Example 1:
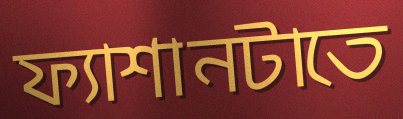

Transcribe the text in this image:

ফ্যাশানটাতে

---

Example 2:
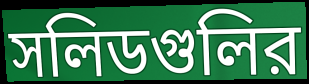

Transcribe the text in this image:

সলিডগুলির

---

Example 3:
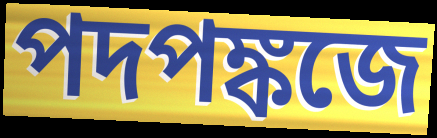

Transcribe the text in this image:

পদপঙ্কজে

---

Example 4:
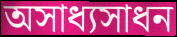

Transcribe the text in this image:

অসাধ্যসাধন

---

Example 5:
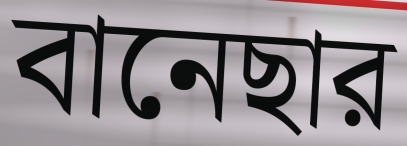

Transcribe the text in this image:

বানেছার